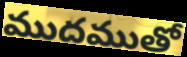
ముదముతో